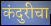
कंदुरीचा